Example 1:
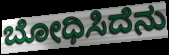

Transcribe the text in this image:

ಬೋಧಿಸಿದೆನು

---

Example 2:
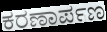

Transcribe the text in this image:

ಕರಣಾರ್ಪಣ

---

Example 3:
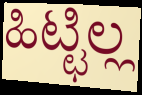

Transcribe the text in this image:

ಹಿಟ್ಟಿಲ್ಲ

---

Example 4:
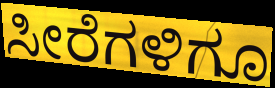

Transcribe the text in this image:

ಸೀರೆಗಳಿಗೂ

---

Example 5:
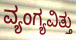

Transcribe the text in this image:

ವ್ಯಂಗ್ಯವಿತ್ತು